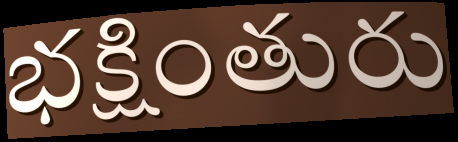
భక్షింతురు